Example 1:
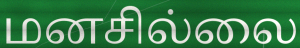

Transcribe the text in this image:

மனசில்லை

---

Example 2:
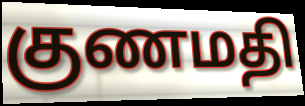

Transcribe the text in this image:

குணமதி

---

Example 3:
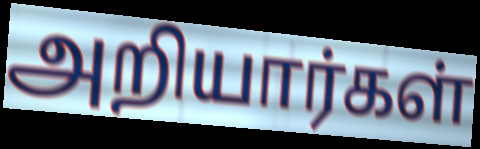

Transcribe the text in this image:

அறியார்கள்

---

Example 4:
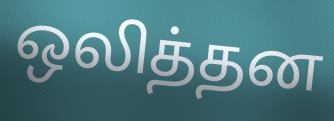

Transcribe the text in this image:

ஒலித்தன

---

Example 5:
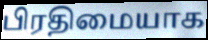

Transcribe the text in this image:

பிரதிமையாக